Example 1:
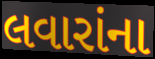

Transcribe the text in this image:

લવારાંના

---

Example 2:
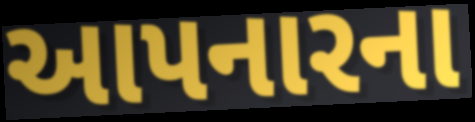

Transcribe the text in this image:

આપનારના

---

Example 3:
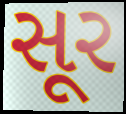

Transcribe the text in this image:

સૂર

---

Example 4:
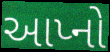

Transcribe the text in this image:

આપ્નો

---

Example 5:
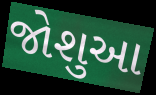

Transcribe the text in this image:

જોશુઆ